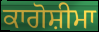
ਕਾਗੋਸ਼ੀਮਾ